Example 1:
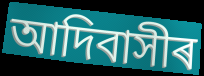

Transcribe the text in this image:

আদিবাসীৰ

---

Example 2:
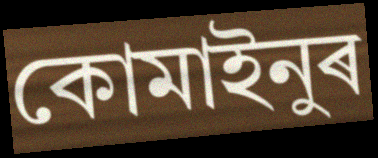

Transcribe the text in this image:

কোমাইনুৰ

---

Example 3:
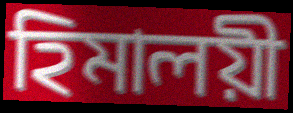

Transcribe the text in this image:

হিমালয়ী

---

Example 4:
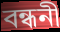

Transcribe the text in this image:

বন্ধনী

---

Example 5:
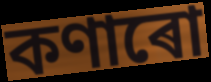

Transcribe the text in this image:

কণাৰো